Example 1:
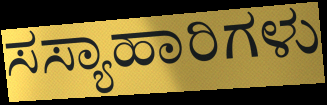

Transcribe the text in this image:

ಸಸ್ಯಾಹಾರಿಗಳು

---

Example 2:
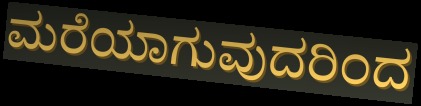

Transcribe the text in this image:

ಮರೆಯಾಗುವುದರಿಂದ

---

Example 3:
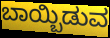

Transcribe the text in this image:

ಬಾಯ್ಬಿಡುವ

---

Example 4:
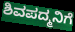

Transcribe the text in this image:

ಶಿವಪದ್ಮನಿಗೆ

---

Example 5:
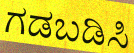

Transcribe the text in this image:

ಗಡಬಡಿಸಿ